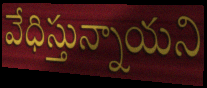
వేధిస్తున్నాయని